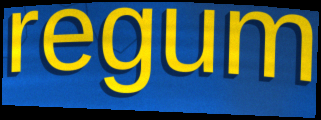
regum